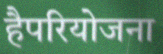
हैपरियोजना